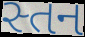
સ્તન